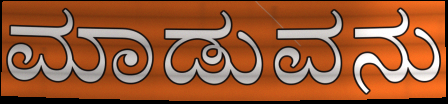
ಮಾಡುವನು